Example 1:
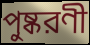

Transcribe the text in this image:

পুষ্করণী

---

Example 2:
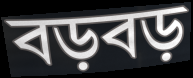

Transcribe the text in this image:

বড়বড়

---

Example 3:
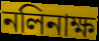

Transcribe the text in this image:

নলিনাক্ষ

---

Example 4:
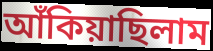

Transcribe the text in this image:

আঁকিয়াছিলাম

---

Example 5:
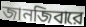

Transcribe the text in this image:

জানজিবারে